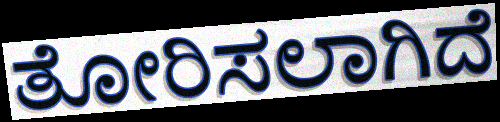
ತೋರಿಸಲಾಗಿದೆ